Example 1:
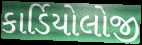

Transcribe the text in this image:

કાર્ડિયોલોજી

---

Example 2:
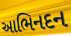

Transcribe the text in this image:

આભિનદન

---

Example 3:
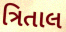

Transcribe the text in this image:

ત્રિતાલ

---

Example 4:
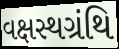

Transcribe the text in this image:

વક્ષસ્થગ્રંથિ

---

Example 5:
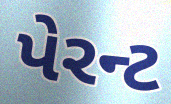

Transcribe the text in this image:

પેરન્ટ